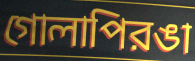
গোলাপিরঙা